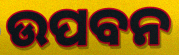
ଉପବନ